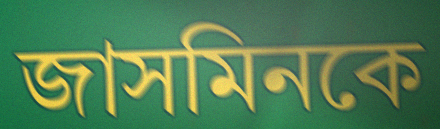
জাসমিনকে